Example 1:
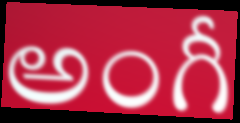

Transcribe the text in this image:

అంగీ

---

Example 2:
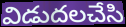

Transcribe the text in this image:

విడుదలచేసి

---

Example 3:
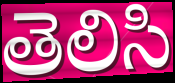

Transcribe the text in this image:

తెలిసి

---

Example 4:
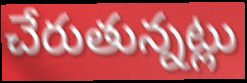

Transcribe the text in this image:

చేరుతున్నట్లు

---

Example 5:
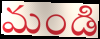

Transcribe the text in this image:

మండి